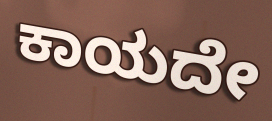
ಕಾಯದೇ